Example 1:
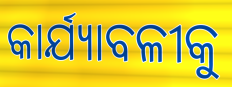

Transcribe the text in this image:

କାର୍ଯ୍ୟାବଳୀକୁ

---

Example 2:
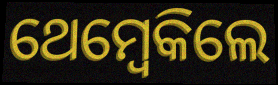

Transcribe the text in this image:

ଥେମ୍ବେକିଲେ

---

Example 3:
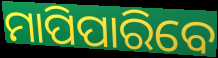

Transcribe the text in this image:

ମାପିପାରିବେ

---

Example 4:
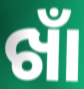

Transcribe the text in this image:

ଖାଁ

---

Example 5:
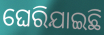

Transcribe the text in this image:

ଘେରିଯାଇଛି